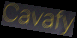
Cavafy